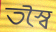
তস্বৈ